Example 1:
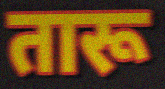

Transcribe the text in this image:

तारू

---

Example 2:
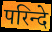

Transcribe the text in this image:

परिन्दे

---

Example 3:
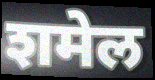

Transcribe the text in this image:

शमेल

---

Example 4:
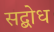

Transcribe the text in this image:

सद्बोध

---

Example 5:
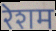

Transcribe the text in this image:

रेशम